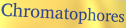
Chromatophores